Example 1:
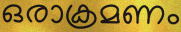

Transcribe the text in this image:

ഒരാക്രമണം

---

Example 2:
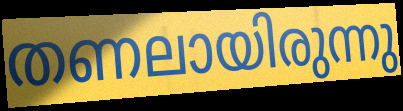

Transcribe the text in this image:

തണലായിരുന്നു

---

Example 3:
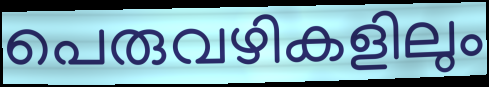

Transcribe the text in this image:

പെരുവഴികളിലും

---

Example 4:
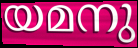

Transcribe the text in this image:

യമനു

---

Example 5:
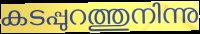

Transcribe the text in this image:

കടപ്പുറത്തുനിന്നു